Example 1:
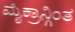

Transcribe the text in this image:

ಮೈಕ್ರಾನ್ಗಿಂತ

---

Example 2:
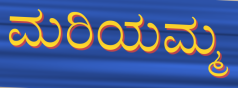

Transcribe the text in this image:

ಮರಿಯಮ್ಮ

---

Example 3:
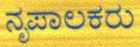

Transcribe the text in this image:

ನೃಪಾಲಕರು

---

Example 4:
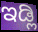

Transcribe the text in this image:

ಇಡ್ಲಿ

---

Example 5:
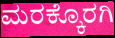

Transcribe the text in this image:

ಮರಕ್ಕೊರಗಿ